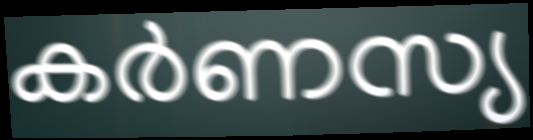
കർണസ്യ